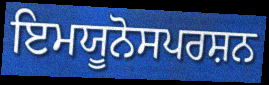
ਇਮਯੂਨੋਸਪਰਸ਼ਨ